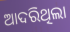
ଆଦରିଥିଲା